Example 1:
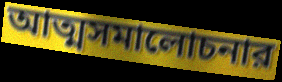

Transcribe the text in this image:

আত্মসমালোচনার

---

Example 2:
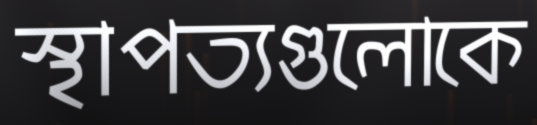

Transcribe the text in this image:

স্থাপত্যগুলোকে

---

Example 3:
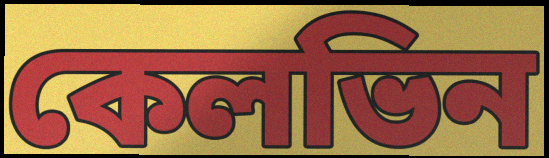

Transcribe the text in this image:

কেলভিন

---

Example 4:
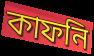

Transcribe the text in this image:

কাফনি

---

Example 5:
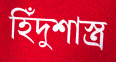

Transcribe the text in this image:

হিঁদুশাস্ত্র